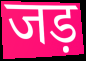
जड़